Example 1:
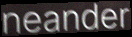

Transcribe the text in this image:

neander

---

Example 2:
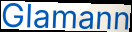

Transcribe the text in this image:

Glamann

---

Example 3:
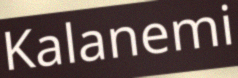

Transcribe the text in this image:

Kalanemi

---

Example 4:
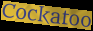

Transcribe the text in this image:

Cockatoo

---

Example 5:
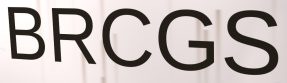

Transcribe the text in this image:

BRCGS